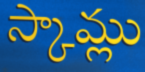
స్కామ్లు